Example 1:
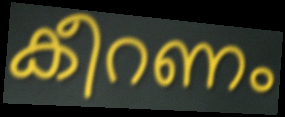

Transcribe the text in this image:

കീറണം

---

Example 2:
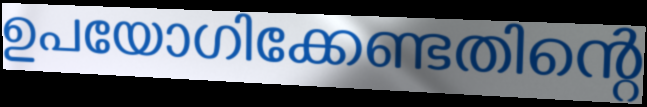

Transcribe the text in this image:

ഉപയോഗിക്കേണ്ടതിന്റെ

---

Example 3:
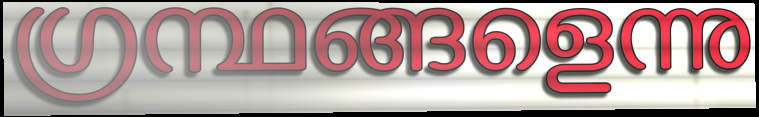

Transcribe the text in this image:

ഗ്രന്ഥങ്ങളെന്നു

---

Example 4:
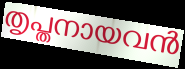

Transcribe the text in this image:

തൃപ്തനായവൻ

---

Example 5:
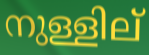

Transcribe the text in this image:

നുള്ളില്